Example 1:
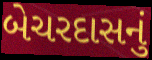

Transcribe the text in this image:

બેચરદાસનું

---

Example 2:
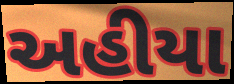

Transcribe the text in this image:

અહીયા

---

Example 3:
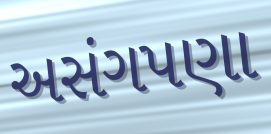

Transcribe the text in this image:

અસંગપણા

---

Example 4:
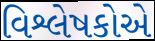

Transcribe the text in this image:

વિશ્લેષકોએ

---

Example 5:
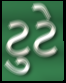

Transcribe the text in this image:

ટુટે